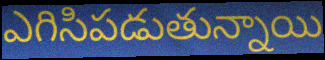
ఎగిసిపడుతున్నాయి